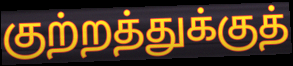
குற்றத்துக்குத்